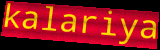
kalariya